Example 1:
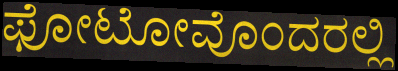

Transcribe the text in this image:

ಫೋಟೋವೊಂದರಲ್ಲಿ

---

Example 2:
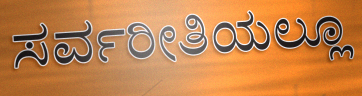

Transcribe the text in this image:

ಸರ್ವರೀತಿಯಲ್ಲೂ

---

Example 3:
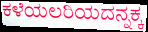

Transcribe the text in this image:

ಕಳೆಯಲರಿಯದನ್ನಕ್ಕ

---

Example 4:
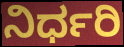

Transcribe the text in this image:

ನಿರ್ಧರಿ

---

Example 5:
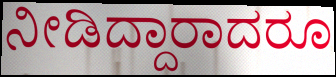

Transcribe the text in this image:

ನೀಡಿದ್ದಾರಾದರೂ